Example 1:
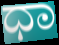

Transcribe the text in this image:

ಧಾ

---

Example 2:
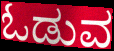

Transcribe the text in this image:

ಓಡುವ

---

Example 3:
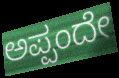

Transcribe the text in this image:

ಅಪ್ಪಂದೇ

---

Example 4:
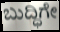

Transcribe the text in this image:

ಬುದ್ಧಿಗೇ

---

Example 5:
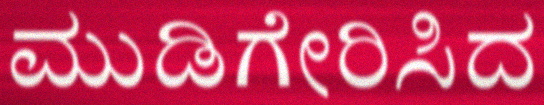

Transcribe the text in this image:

ಮುಡಿಗೇರಿಸಿದ